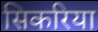
सिकरिया